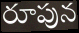
రూపున